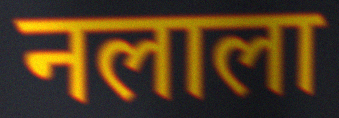
नलाला